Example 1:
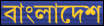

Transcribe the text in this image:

বাংলাদেশ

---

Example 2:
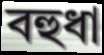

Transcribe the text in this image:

বহুধা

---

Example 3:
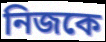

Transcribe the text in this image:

নিজকে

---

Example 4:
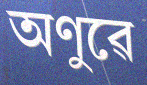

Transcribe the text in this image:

অণুৱে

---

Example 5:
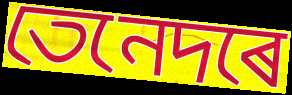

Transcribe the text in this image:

তেনেদৰে